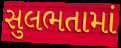
સુલભતામાં